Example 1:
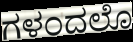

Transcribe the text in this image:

ಗಳಂದಲೊ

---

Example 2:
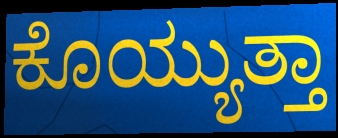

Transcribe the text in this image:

ಕೊಯ್ಯುತ್ತಾ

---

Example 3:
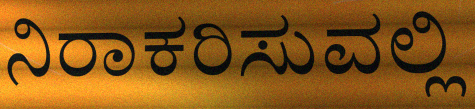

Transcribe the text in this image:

ನಿರಾಕರಿಸುವಲ್ಲಿ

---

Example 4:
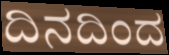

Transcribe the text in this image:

ದಿನದಿಂದ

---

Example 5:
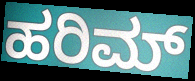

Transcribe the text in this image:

ಹರಿಮ್